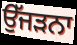
ਉੱਜੜਨਾ